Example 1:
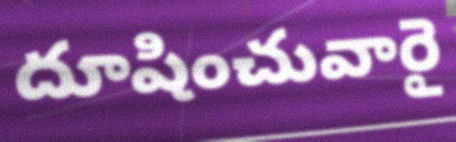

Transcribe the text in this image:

దూషించువారై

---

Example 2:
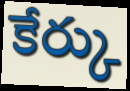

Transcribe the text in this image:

కేర్కు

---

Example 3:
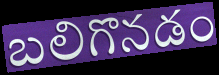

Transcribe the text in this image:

బలిగొనడం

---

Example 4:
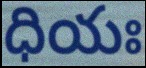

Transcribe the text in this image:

ధియః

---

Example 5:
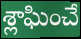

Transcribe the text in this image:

శ్లాఘించే